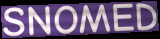
SNOMED